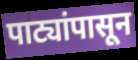
पाट्यांपासून